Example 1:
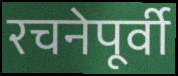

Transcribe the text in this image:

रचनेपूर्वी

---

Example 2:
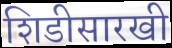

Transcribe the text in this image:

शिडीसारखी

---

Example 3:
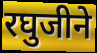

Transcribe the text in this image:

रघुजीने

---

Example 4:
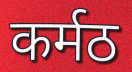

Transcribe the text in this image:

कर्मठ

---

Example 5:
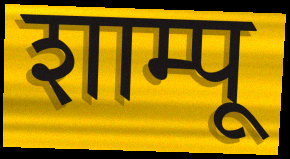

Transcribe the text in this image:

शाम्पू